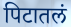
पिटातलं